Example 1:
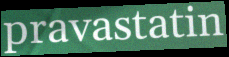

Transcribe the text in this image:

pravastatin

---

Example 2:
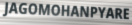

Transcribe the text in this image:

JAGOMOHANPYARE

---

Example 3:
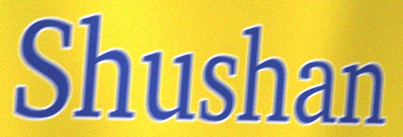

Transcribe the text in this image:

Shushan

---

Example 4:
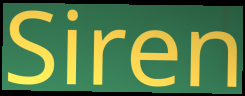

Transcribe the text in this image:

Siren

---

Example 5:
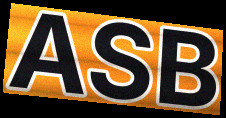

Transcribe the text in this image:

ASB